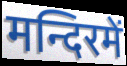
मन्दिरमें